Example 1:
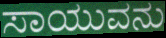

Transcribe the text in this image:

ಸಾಯುವನು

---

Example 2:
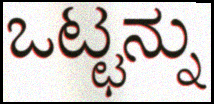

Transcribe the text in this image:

ಒಟ್ಟನ್ನು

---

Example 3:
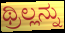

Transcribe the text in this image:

ಥ್ರಿಲ್ಲನ್ನು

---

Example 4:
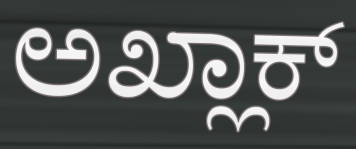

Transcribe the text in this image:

ಅಖ್ಲಾಕ್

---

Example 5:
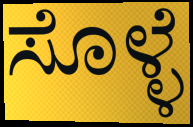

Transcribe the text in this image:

ಸೊಳ್ಳೆ